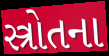
સ્ત્રોતના